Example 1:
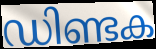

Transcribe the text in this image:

ഡിണ്ടക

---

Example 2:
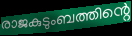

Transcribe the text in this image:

രാജകുടുംബത്തിന്റെ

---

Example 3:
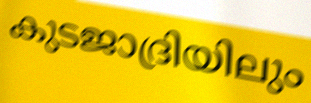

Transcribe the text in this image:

കുടജാദ്രിയിലും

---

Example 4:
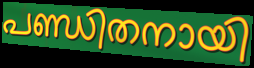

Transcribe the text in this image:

പണ്ഡിതനായി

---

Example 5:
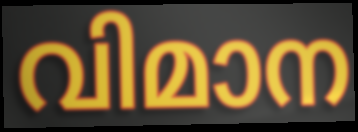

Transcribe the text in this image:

വിമാന